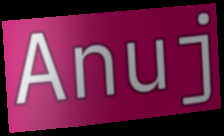
Anuj